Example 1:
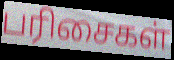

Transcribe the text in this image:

பரிசைகள்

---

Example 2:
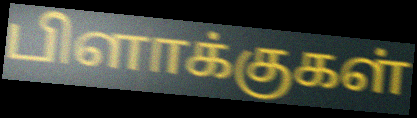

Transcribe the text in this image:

பிளாக்குகள்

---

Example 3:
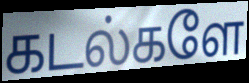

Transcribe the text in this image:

கடல்களே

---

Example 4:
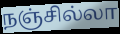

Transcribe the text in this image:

நஞ்சில்லா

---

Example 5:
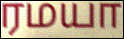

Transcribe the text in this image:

ரமயா